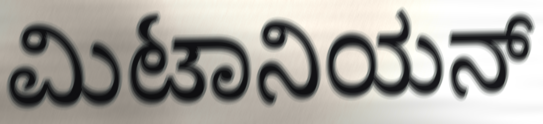
ಮಿಟಾನಿಯನ್